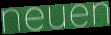
neuen